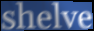
shelve